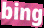
bing